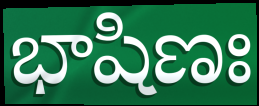
భాషిణః